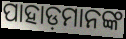
ପାହାଡ଼ମାନଙ୍କ